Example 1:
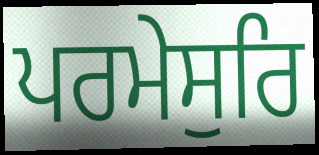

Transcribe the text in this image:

ਪਰਮੇਸੁਰਿ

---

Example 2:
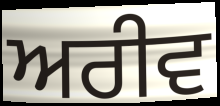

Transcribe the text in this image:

ਅਰੀਵ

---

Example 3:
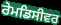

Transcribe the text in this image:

ਰੇਮਡਿਸੀਵਰ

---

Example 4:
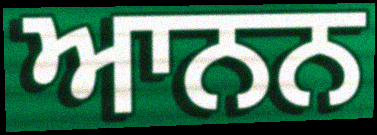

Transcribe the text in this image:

ਆਨਨ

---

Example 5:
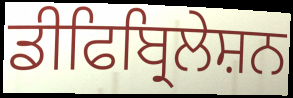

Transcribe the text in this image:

ਡੀਫਿਬ੍ਰਿਲੇਸ਼ਨ